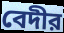
বেদীর